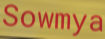
Sowmya